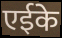
एईके